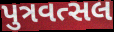
પુત્રવત્સલ